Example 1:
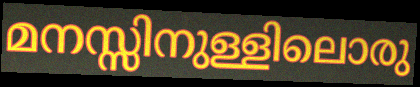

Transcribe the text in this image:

മനസ്സിനുള്ളിലൊരു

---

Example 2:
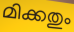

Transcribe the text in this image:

മിക്കതും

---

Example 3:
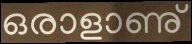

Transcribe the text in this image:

ഒരാളാണു്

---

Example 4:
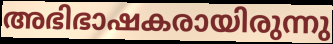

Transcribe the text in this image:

അഭിഭാഷകരായിരുന്നു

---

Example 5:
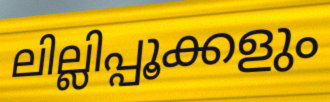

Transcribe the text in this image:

ലില്ലിപ്പൂക്കളും